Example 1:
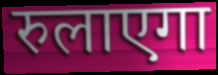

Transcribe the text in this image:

रुलाएगा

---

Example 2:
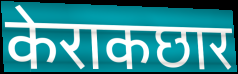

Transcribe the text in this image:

केराकछार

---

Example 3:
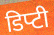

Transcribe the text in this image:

डिप्‍टी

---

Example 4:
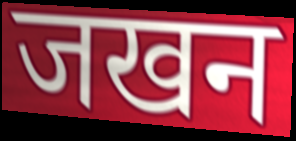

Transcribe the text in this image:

जखन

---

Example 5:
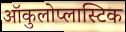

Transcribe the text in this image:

ऑकुलोप्लास्टिक